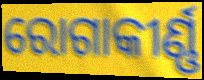
ରୋଗାକୀର୍ଣ୍ଣ